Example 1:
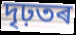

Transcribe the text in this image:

দৃঢ়তৰ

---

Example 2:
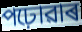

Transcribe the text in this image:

পঢ়োৱাৰ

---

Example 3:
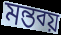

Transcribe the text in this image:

মন্তব্য়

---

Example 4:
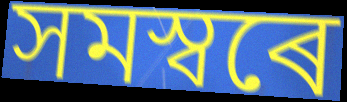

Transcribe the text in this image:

সমস্বৰে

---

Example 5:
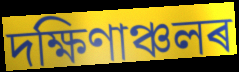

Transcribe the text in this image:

দক্ষিণাঞ্চলৰ